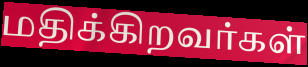
மதிக்கிறவர்கள்